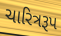
ચારિત્રરૂપ